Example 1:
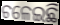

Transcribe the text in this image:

ଚଳେଇଛି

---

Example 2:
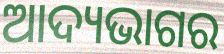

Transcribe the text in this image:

ଆଦ୍ୟଭାଗର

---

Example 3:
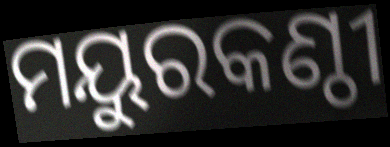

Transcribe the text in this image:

ମୟୁରକଣ୍ଠୀ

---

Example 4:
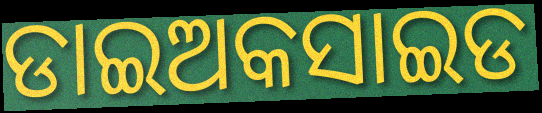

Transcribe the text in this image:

ଡାଇଅକସାଇଡ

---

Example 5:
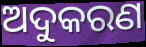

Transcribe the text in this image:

ଅଦୁକରଣ